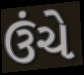
ઉંચે